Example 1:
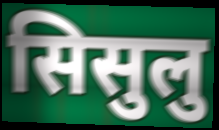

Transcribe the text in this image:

सिसुलु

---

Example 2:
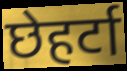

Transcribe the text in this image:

छेहर्टा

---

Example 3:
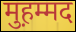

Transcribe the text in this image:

मुह़म्मद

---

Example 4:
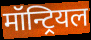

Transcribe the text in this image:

मॉन्ट्रियल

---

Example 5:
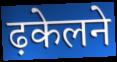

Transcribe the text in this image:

ढ़केलने